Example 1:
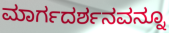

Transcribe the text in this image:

ಮಾರ್ಗದರ್ಶನವನ್ನೂ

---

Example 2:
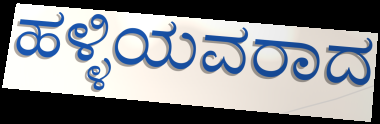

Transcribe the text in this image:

ಹಳ್ಳಿಯವರಾದ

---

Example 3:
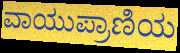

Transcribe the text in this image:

ವಾಯುಪ್ರಾಣಿಯ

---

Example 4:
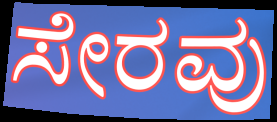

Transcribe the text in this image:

ಸೇರವು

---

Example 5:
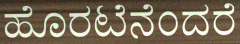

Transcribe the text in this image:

ಹೊರಟೆನೆಂದರೆ